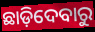
ଛାଡ଼ିଦେବାରୁ